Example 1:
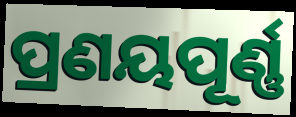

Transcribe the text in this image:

ପ୍ରଣୟପୂର୍ଣ୍ଣ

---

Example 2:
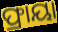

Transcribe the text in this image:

ଫ୍ରାୟା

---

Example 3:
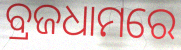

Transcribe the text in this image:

ବ୍ରଜଧାମରେ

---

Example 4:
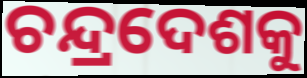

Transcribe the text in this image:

ଚନ୍ଦ୍ରଦେଶକୁ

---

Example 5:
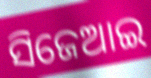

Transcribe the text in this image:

ସିଜେଆଇ